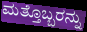
ಮತ್ತೊಬ್ಬರನ್ನು